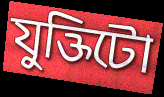
যুক্তিটো